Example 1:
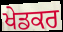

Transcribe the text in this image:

ਖੇਡਕਰ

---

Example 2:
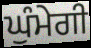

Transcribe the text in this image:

ਘੁੰਮੇਗੀ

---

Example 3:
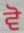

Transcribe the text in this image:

ਵੋ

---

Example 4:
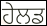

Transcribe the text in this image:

ਹੇਲਡ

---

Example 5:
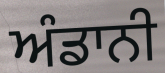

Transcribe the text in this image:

ਅੰਡਾਨੀ